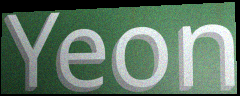
Yeon